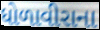
ધોળાવીરાના